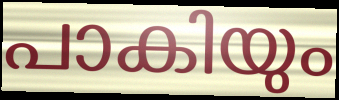
പാകിയും